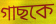
গাছকে